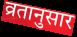
व्रतानुसार